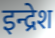
इन्द्रेश